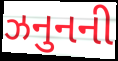
ઝનુનની